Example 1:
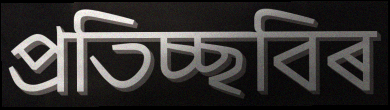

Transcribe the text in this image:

প্ৰতিচ্ছবিৰ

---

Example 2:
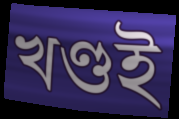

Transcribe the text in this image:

খণ্ডই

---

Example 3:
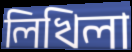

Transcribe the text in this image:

লিখিলা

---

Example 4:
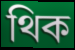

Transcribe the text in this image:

থিক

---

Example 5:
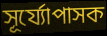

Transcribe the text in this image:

সূৰ্য্যোপাসক